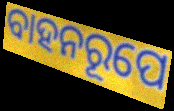
ବାହନରୂପେ